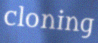
cloning